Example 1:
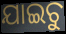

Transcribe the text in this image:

ଯାଇଚୁ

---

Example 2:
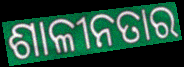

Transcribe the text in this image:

ଶାଳୀନତାର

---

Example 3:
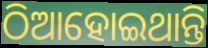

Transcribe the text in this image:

ଠିଆହୋଇଥାନ୍ତି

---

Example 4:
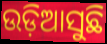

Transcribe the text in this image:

ଉଡ଼ିଆସୁଛି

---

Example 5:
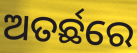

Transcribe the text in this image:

ଅତର୍ଛରେ